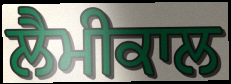
ਲੈਮੀਕਾਲ